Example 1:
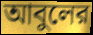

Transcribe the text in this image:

আবুলের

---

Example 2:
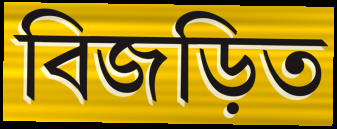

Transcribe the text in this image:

বিজড়িত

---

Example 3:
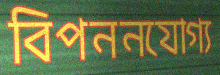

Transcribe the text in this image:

বিপননযোগ্য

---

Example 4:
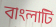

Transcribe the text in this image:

বাংলাটি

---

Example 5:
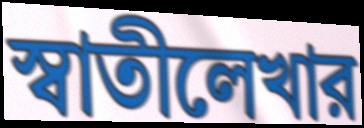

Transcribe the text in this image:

স্বাতীলেখার